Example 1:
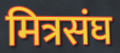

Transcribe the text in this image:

मित्रसंघ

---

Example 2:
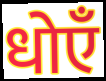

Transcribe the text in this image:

धोएँ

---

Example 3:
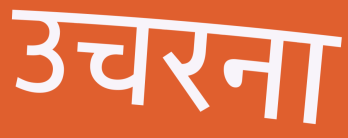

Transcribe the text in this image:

उचरना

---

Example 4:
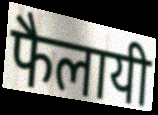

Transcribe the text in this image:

फैलायी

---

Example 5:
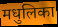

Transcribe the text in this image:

मधुलिका